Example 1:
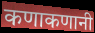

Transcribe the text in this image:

कणाकणानी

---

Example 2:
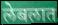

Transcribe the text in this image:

लेबलात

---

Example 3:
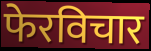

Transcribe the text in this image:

फेरविचार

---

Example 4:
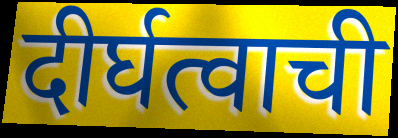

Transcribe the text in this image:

दीर्घत्वाची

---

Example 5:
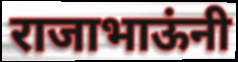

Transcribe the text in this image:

राजाभाऊंनी